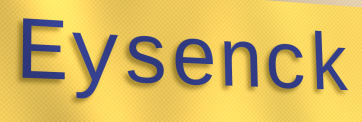
Eysenck